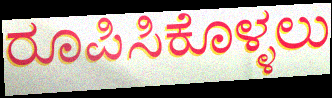
ರೂಪಿಸಿಕೊಳ್ಳಲು